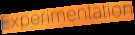
Experimentation